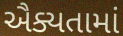
ઐક્યતામાં